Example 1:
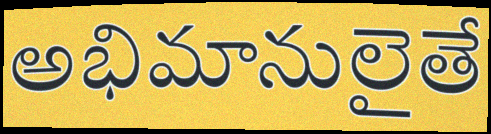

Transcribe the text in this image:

అభిమానులైతే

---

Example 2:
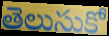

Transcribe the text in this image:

తెలుసుకో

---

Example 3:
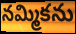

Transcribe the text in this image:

నమ్మికను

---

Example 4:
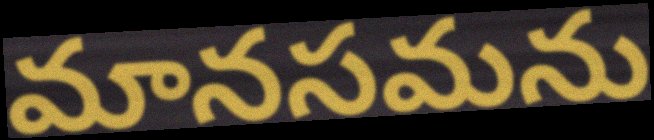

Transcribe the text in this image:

మానసమను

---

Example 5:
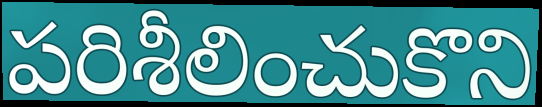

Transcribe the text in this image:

పరిశీలించుకొని